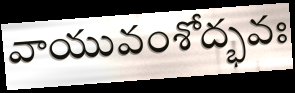
వాయువంశోద్భవః